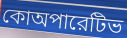
কোঅপারেটিভ